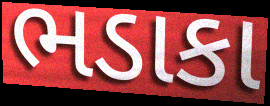
ભડાકા